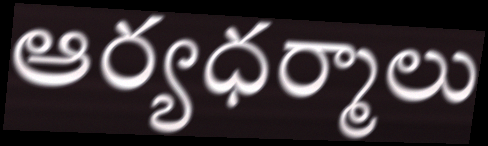
ఆర్యధర్మాలు